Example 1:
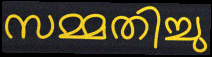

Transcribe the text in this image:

സമ്മതിച്ചു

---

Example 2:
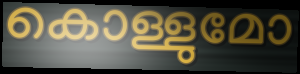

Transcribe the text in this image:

കൊള്ളുമോ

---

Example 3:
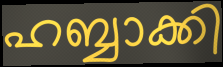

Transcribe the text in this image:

ഹബ്ബാക്കി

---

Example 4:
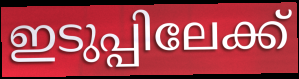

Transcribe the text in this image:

ഇടുപ്പിലേക്ക്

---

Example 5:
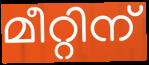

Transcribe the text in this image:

മീറ്റിന്